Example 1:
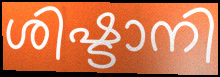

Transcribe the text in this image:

ശിഷ്ടാനി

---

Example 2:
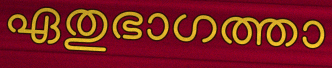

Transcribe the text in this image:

ഏതുഭാഗത്താ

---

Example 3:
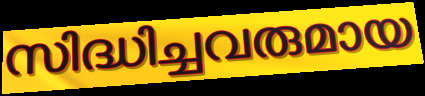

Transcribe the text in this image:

സിദ്ധിച്ചവരുമായ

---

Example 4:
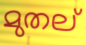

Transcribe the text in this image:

മുതല്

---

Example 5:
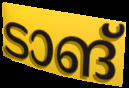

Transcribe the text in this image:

ടാങ്